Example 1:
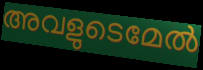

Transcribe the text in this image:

അവളുടെമേൽ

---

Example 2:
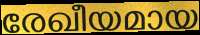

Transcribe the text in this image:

രേഖീയമായ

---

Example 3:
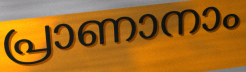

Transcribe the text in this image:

പ്രാണാനാം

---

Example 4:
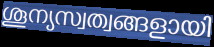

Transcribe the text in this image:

ശൂന്യസ്വത്വങ്ങളായി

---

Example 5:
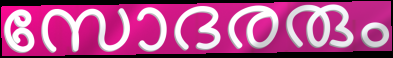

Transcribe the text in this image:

സോദരരും